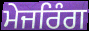
ਮੇਜਰਿੰਗ